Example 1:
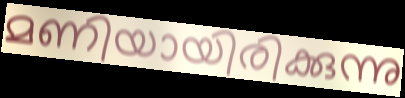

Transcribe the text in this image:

മണിയായിരിക്കുന്നു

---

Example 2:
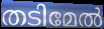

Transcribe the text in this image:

തടിമേൽ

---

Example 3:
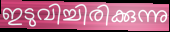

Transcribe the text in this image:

ഇടുവിച്ചിരിക്കുന്നു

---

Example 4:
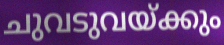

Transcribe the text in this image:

ചുവടുവയ്ക്കും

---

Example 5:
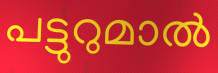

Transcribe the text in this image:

പട്ടുറുമാൽ